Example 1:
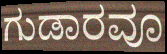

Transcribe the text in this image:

ಗುಡಾರವೂ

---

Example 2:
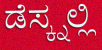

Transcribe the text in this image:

ಡೆಸ್ಕ್ನಲ್ಲಿ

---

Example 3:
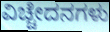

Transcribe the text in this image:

ವಿಚ್ಚೇದನಗಳು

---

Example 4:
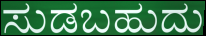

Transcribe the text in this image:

ಸುಡಬಹುದು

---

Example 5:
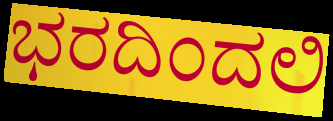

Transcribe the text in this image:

ಭರದಿಂದಲಿ